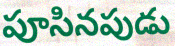
పూసినపుడు